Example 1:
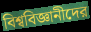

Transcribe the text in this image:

বিশ্ববিজ্ঞানীদের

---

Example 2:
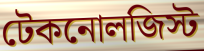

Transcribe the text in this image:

টেকনোলজিস্ট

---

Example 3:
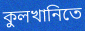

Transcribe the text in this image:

কুলখানিতে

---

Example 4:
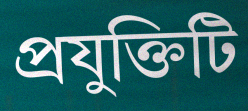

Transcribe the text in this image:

প্রযুক্তিটি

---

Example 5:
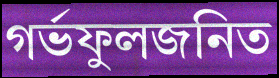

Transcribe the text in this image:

গর্ভফুলজনিত